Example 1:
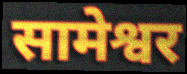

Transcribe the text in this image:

सामेश्वर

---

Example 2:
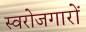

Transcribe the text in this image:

स्वरोजगारों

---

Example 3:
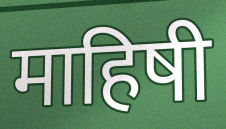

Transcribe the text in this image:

माहिषी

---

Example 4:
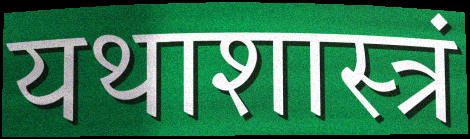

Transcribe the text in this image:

यथाशास्त्रं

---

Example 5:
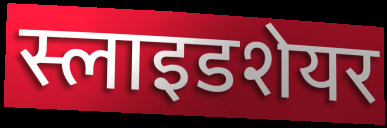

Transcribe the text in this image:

स्लाइडशेयर